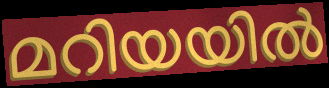
മറിയയിൽ